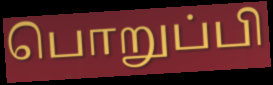
பொறுப்பி